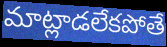
మాట్లాడలేకపోతే